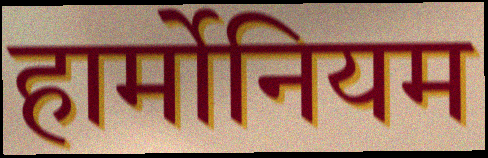
हार्मोनियम